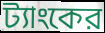
ট্যাংকের